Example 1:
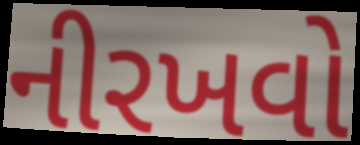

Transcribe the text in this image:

નીરખવો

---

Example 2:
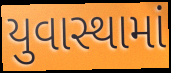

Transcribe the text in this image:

યુવાસ્થામાં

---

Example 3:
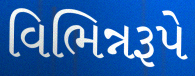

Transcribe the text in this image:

વિભિન્નરૂપે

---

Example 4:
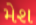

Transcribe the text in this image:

મેશ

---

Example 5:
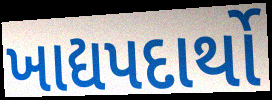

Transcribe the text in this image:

ખાદ્યપદાર્થો